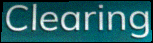
Clearing